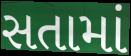
સતામાં